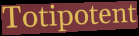
Totipotent